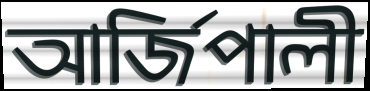
আৰ্জিপালী